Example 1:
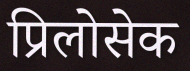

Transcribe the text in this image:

प्रिलोसेक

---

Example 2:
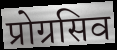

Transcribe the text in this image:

प्रोग्रसिव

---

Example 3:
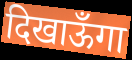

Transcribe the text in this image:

दिखाऊँगा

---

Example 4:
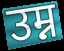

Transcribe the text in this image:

उम्न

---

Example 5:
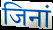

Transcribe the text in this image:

जिनां